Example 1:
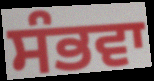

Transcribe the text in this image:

ਸੰਭਵਾ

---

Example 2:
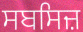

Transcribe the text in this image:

ਸਬਸਿਜ਼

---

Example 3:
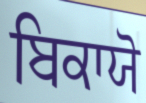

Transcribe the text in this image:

ਬਿਕਾਯੋ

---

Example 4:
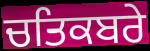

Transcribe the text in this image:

ਚਤਿਕਬਰੇ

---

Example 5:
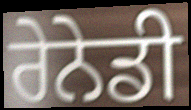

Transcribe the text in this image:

ਰੇਨੇਡੀ